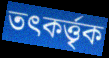
তৎকর্ত্তৃক